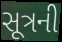
સૂત્રની